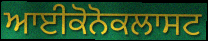
ਆਈਕੋਨੋਕਲਾਸਟ